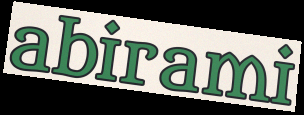
abirami